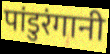
पांडुरंगानी